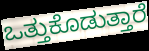
ಒತ್ತುಕೊಡುತ್ತಾರೆ